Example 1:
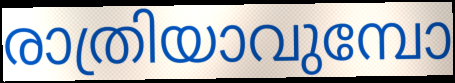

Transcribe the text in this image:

രാത്രിയാവുമ്പോ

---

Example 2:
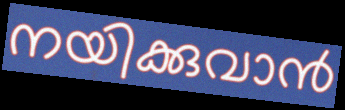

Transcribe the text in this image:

നയിക്കുവാൻ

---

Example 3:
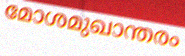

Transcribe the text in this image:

മോശമുഖാന്തരം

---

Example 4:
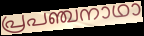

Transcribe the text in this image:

പ്രപഞ്ചനാഥാ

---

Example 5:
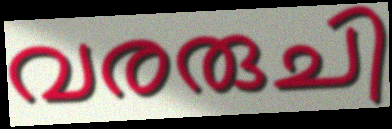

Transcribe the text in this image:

വരരുചി